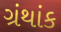
ગ્રંથાંક